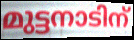
മുട്ടനാടിന്